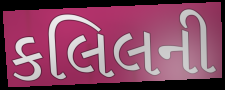
કલિલની